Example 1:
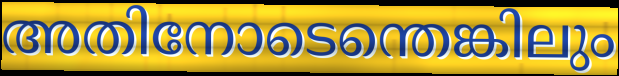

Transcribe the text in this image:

അതിനോടെന്തെങ്കിലും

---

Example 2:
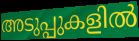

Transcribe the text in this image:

അടുപ്പുകളിൽ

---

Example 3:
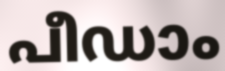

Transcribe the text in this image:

പീഡാം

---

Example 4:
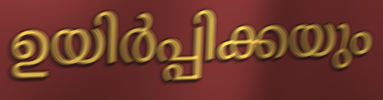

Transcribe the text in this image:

ഉയിർപ്പിക്കയും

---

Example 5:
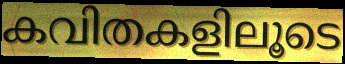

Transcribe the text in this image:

കവിതകളിലൂടെ